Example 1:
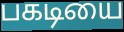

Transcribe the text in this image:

பகடியை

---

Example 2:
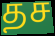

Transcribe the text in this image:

தச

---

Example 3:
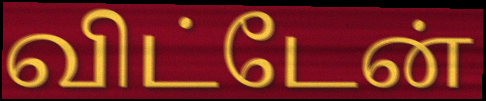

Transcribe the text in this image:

விட்டேன்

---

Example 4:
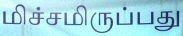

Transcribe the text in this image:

மிச்சமிருப்பது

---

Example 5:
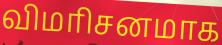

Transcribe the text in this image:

விமரிசனமாக